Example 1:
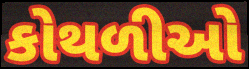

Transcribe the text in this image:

કોથળીઓ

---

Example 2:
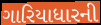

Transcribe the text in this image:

ગારિયાધારની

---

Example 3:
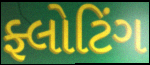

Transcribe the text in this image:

ફ્લોટિંગ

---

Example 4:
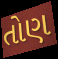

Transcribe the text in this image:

તોણ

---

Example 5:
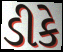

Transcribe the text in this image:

ડીકે